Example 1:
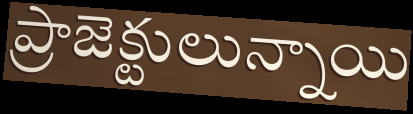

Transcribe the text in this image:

ప్రాజెక్టులున్నాయి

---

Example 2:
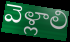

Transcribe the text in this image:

వెళ్లాలి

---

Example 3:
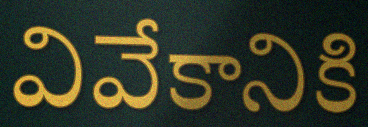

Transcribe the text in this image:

వివేకానికి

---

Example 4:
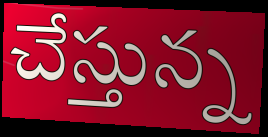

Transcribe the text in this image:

చేస్తున్న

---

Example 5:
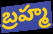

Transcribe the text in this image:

బ్రహ్మ